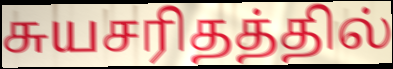
சுயசரிதத்தில்